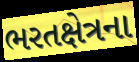
ભરતક્ષેત્રના